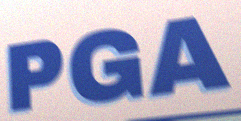
PGA